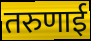
तरुणाई